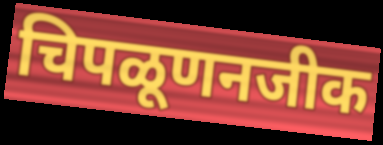
चिपळूणनजीक